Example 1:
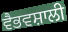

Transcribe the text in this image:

ਵੈਭਵਸ਼ਾਲੀ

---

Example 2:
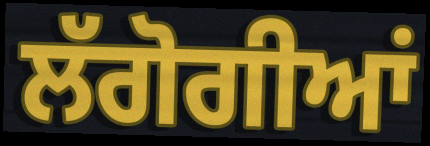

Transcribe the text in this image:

ਲੱਗੋਗੀਆਂ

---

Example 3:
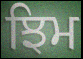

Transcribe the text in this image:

ਝਿਮ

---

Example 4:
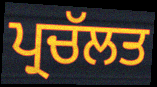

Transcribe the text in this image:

ਪ੍ਰਚੱਲਤ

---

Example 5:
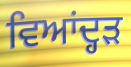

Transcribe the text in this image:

ਵਿਆਂਦ੍ਹੜ